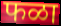
फळा